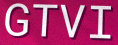
GTVI